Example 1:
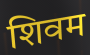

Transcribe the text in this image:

शिवम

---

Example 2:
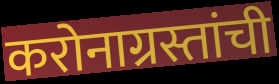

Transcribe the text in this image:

करोनाग्रस्तांची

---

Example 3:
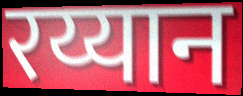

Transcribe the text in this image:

रय्यान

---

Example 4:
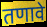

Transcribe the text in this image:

तणावे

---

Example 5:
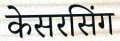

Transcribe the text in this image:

केसरसिंग